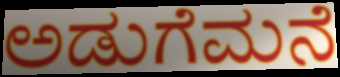
ಅಡುಗೆಮನೆ